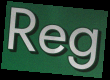
Reg